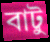
বাটু